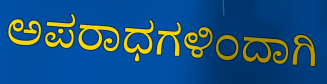
ಅಪರಾಧಗಳಿಂದಾಗಿ